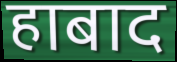
हाबाद